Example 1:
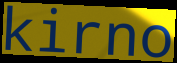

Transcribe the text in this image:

kirno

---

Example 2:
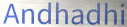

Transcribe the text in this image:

Andhadhi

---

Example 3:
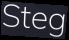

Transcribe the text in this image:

Steg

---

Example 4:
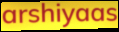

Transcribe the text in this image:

arshiyaas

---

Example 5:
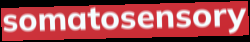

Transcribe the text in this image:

somatosensory